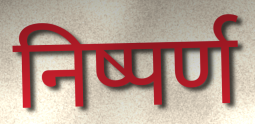
निष्पर्ण